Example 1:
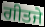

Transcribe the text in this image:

ਗੀਤਜੇ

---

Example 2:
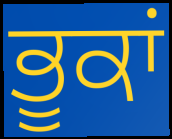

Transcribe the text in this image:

ਭੂਕਾਂ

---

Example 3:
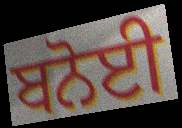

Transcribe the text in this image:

ਬਨੋਈ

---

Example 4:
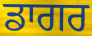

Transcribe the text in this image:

ਡਾਗਰ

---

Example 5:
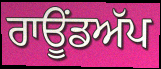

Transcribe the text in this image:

ਰਾਊਂਡਅੱਪ